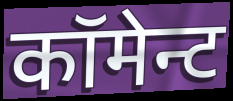
कॉमेन्ट